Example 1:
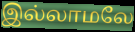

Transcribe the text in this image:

இல்லாமலே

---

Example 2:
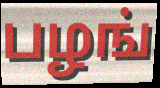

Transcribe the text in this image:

பழங்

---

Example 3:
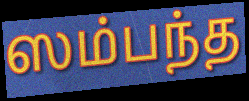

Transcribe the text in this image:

ஸம்பந்த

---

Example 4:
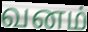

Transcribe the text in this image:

வனம்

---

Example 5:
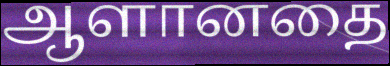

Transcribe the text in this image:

ஆளானதை